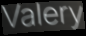
Valery